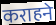
कराहने